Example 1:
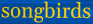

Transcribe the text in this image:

songbirds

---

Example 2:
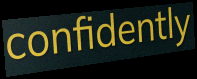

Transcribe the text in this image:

confidently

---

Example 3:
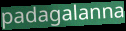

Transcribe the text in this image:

padagalanna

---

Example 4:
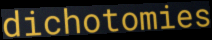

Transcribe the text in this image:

dichotomies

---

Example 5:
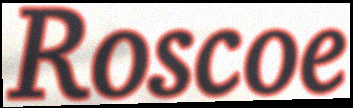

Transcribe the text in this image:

Roscoe